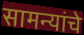
सामन्यांचे